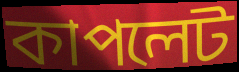
কাপলেট